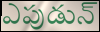
ఎపుడున్